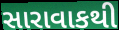
સારાવાકથી